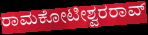
ರಾಮಕೋಟೀಶ್ವರರಾವ್